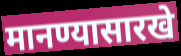
मानण्यासारखे